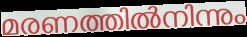
മരണത്തിൽനിന്നും